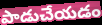
పాడుచేయడం